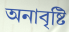
অনাবৃষ্টি